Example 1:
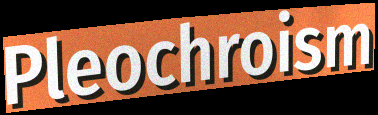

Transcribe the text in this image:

Pleochroism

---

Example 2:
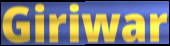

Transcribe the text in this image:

Giriwar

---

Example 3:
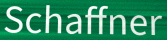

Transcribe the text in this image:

Schaffner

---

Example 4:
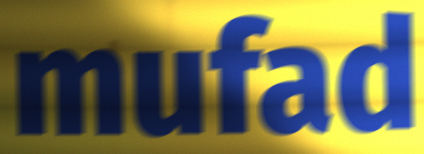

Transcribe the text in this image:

mufad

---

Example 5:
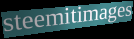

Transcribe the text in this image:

steemitimages